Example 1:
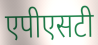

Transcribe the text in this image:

एपीएसटी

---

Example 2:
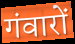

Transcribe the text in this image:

गंवारों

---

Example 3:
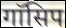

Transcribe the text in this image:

गॉसिप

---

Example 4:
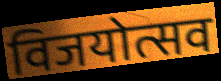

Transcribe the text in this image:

विजयोत्सव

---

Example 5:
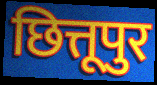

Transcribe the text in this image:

छित्तूपुर